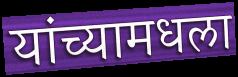
यांच्यामधला